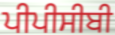
ਪੀਪੀਸੀਬੀ